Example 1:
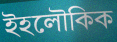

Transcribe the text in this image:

ইহলৌকিক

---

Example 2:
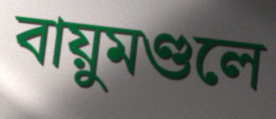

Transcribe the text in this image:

বায়ুমণ্ডলে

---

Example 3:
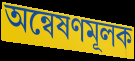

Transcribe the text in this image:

অন্বেষণমূলক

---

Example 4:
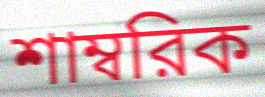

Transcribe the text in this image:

শাম্বরিক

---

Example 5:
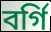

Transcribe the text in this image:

বর্গি